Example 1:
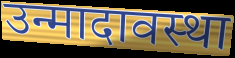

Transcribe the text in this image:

उन्मादावस्था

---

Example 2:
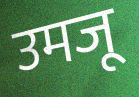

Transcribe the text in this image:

उमजू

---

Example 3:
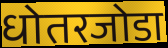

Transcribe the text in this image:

धोतरजोडा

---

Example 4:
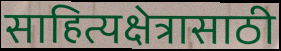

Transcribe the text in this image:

साहित्यक्षेत्रासाठी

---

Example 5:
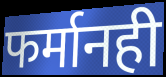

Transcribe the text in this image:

फर्मानही